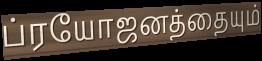
ப்ரயோஜனத்தையும்